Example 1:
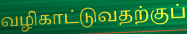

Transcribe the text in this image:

வழிகாட்டுவதற்குப்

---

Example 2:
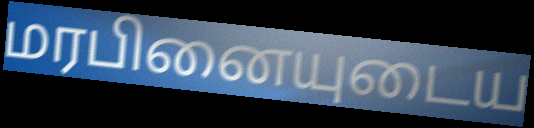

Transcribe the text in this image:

மரபினையுடைய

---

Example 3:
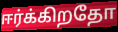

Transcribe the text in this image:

ஈர்க்கிறதோ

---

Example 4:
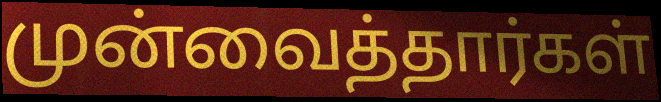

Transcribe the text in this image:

முன்வைத்தார்கள்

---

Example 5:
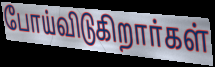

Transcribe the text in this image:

போய்விடுகிறார்கள்